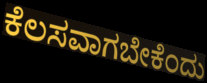
ಕೆಲಸವಾಗಬೇಕೆಂದು